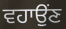
ਵਹਾਉਂਣ